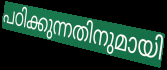
പഠിക്കുന്നതിനുമായി